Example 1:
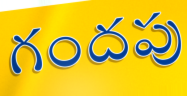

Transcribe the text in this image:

గందపు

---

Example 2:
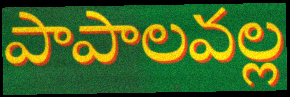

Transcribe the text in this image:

పాపాలవల్ల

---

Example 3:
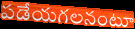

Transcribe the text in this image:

పడేయగలనంటూ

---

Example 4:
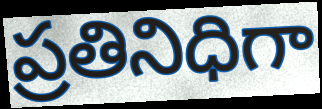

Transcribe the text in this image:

ప్రతినిధిగా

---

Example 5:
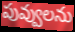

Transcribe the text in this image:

పువ్వులను